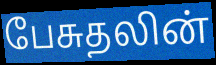
பேசுதலின்